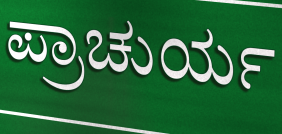
ಪ್ರಾಚುರ್ಯ